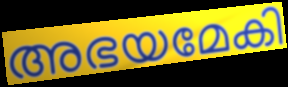
അഭയമേകി